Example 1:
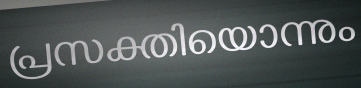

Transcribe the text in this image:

പ്രസക്തിയൊന്നും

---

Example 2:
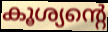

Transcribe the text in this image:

കൂശ്യന്റെ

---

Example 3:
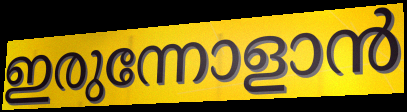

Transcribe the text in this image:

ഇരുന്നോളാൻ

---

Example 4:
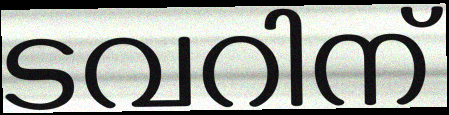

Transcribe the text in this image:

ടവറിന്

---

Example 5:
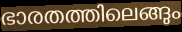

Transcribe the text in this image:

ഭാരതത്തിലെങ്ങും